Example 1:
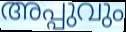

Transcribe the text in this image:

അപ്പുവും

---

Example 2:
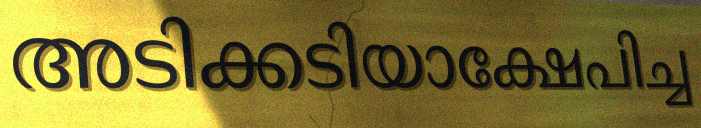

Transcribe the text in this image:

അടിക്കടിയാക്ഷേപിച്ച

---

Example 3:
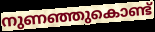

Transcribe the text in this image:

നുണഞ്ഞുകൊണ്ട്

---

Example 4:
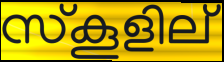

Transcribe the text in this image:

സ്കൂളില്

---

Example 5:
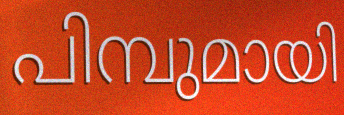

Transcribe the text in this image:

പിമ്പുമായി